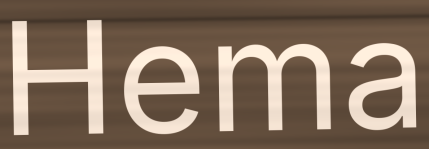
Hema